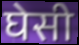
घेसी